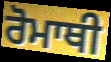
ਰੋਮਾਥੀ